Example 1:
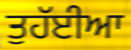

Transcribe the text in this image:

ਤੁਹੱਈਆ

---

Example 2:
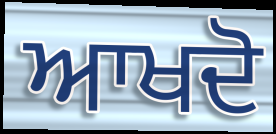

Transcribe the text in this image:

ਆਖਦੋ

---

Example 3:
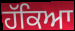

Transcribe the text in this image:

ਹੱਕਿਆ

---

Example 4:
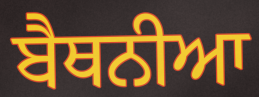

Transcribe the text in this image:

ਬੈਥਨੀਆ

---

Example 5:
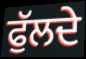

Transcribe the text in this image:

ਫੁੱਲਦੇ